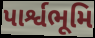
પાર્શ્વભૂમિ